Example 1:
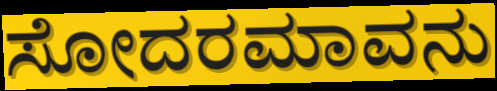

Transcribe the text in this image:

ಸೋದರಮಾವನು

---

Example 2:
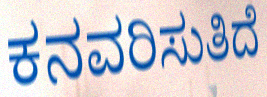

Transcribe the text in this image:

ಕನವರಿಸುತಿದೆ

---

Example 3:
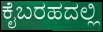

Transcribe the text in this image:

ಕೈಬರಹದಲ್ಲಿ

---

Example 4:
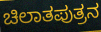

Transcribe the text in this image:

ಚಿಲಾತಪುತ್ರನ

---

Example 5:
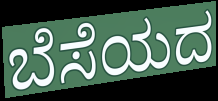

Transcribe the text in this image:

ಬೆಸೆಯದ